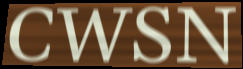
CWSN